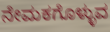
ನೇಮಕಗೊಳ್ಳುವ